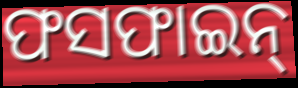
ଫସଫାଇନ୍